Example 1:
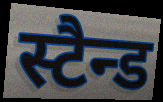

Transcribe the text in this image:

स्टैन्ड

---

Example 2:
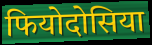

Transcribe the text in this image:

फियोदोसिया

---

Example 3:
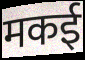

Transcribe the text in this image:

मकई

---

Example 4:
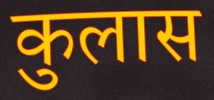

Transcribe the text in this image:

कुलास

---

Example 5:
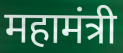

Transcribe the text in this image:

महामंत्री